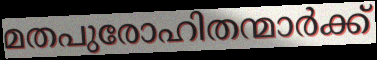
മതപുരോഹിതന്മാർക്ക്